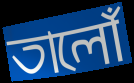
তালোঁ